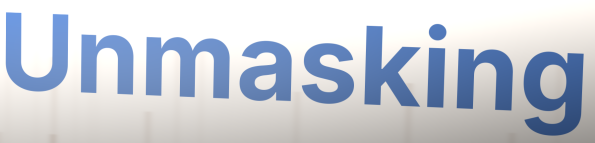
Unmasking